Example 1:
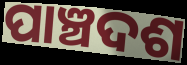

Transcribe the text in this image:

ପାଞ୍ଚଦଶ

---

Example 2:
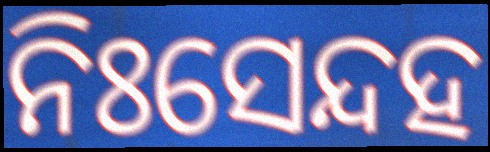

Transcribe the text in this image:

ନିଃସେନ୍ଦହ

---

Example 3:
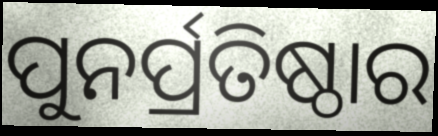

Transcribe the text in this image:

ପୁନର୍ପ୍ରତିଷ୍ଠାର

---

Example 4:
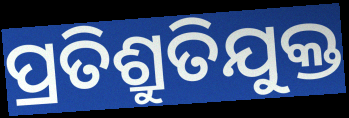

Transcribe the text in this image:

ପ୍ରତିଶ୍ରୁତିଯୁକ୍ତ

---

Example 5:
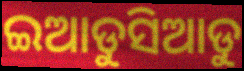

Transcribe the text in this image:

ଇଆଡୁସିଆଡୁ